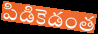
పిడికెడంత